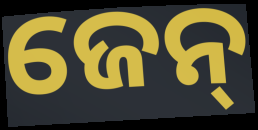
ଜେନ୍